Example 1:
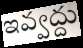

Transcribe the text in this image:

ఇవ్వద్దు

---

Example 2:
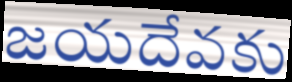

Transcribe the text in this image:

జయదేవకు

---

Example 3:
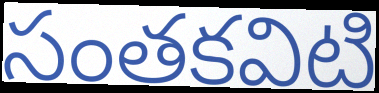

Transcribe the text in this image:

సంతకవిటి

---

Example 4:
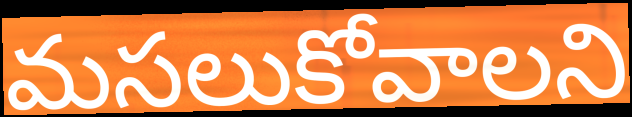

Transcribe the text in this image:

మసలుకోవాలని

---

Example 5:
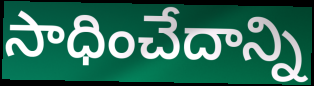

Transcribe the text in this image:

సాధించేదాన్ని